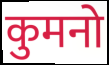
कुमनो